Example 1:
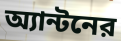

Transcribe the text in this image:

অ্যান্টনের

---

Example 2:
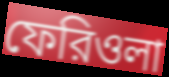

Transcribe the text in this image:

ফেরিওলা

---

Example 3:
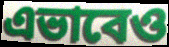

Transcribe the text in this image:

এভাবেও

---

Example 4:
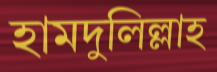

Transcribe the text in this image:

হামদুলিল্লাহ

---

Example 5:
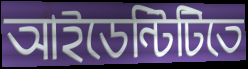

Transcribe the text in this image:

আইডেন্টিটিতে